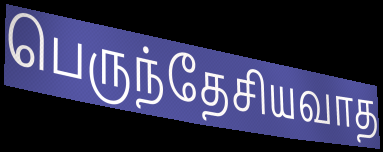
பெருந்தேசியவாத